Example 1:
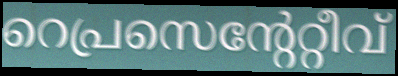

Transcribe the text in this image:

റെപ്രസെന്റേറ്റീവ്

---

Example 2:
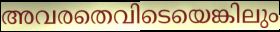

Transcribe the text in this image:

അവരതെവിടെയെങ്കിലും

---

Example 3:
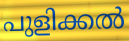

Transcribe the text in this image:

പുളിക്കൽ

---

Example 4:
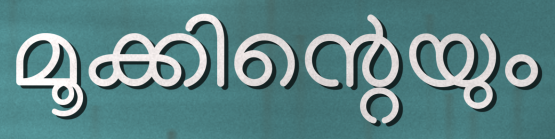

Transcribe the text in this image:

മൂക്കിന്റെയും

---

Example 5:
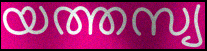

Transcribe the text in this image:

യത്തസ്യ